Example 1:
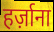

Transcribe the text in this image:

हर्ज़ाना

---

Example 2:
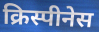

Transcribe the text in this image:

क्रिस्पीनेस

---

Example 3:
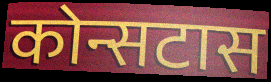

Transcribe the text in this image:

कोन्सटास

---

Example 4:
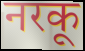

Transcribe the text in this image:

नरकू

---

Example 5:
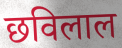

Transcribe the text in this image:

छविलाल